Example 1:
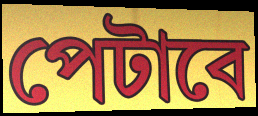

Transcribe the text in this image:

পেটাবে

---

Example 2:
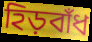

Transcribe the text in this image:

হিড়বাঁধ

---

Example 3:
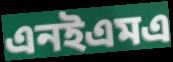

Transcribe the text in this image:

এনইএমএ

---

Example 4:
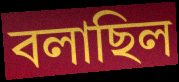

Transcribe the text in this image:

বলাছিল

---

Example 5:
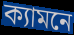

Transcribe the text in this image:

ক্যামনে